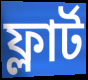
ফ্লার্ট